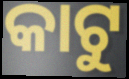
କାଟୁ